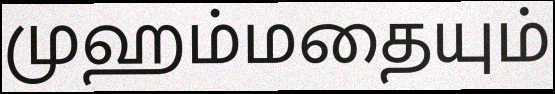
முஹம்மதையும்